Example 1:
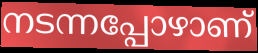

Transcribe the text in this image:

നടന്നപ്പോഴാണ്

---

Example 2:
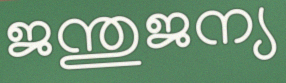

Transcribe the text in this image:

ജന്തുജന്യ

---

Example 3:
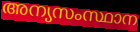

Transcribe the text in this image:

അന്യസംസ്ഥാന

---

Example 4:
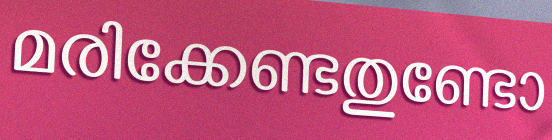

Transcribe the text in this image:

മരിക്കേണ്ടതുണ്ടോ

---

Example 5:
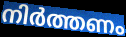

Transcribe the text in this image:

നിർത്തണം